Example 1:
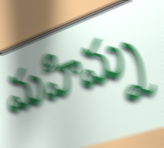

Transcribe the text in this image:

మహిమ్న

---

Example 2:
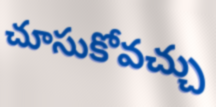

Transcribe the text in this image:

చూసుకోవచ్చు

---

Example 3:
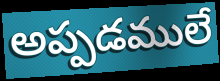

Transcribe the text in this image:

అప్పడములే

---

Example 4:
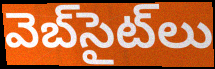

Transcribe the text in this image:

వెబ్‌సైట్‌లు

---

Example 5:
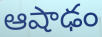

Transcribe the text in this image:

ఆషాఢం